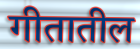
गीतातील